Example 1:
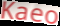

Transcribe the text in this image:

Kaeo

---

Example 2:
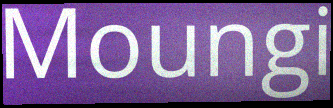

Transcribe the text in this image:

Moungi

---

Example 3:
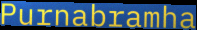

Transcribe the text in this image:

Purnabramha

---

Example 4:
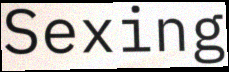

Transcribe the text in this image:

Sexing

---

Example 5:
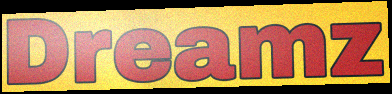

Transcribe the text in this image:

Dreamz